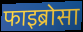
फाइब्रोसा